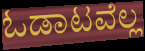
ಓಡಾಟವೆಲ್ಲ